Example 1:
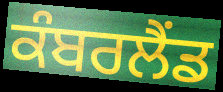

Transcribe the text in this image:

ਕੰਬਰਲੈਂਡ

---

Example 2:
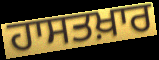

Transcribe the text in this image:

ਹਾਸਤਖ਼ਾਰ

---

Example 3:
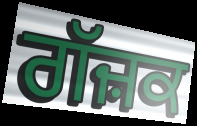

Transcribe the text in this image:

ਗੱਜ਼ਕ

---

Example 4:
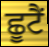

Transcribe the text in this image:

ਛੂਟੈਂ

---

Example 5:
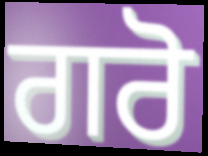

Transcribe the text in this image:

ਗਰੋ